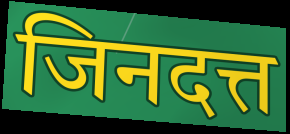
जिनदत्त